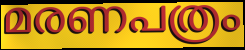
മരണപത്രം